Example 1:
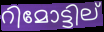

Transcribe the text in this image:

റിമോട്ടില്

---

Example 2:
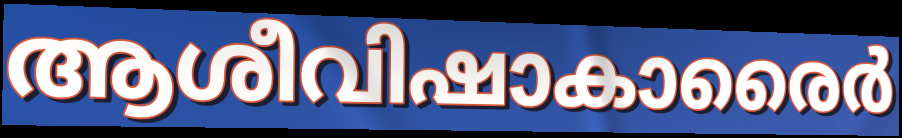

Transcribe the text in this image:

ആശീവിഷാകാരൈർ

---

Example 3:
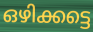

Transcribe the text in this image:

ഒഴിക്കട്ടെ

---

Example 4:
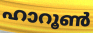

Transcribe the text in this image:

ഹാറൂൺ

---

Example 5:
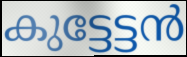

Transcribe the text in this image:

കുട്ടേട്ടൻ